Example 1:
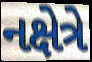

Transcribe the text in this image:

નક્ષેત્રે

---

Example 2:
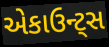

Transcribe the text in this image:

એકાઉન્ટ્સ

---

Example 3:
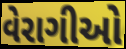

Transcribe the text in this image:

વેરાગીઓ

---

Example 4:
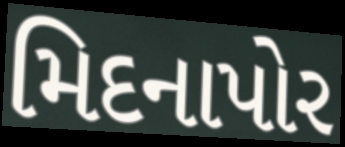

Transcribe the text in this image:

મિદનાપોર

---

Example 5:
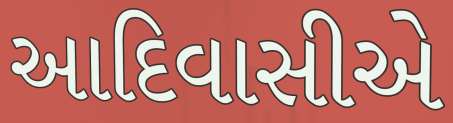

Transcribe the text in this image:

આદિવાસીએ